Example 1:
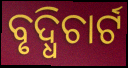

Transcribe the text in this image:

ବୃଦ୍ଧିଚାର୍ଟ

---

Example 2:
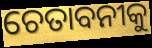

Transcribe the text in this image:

ଚେତାବନୀକୁ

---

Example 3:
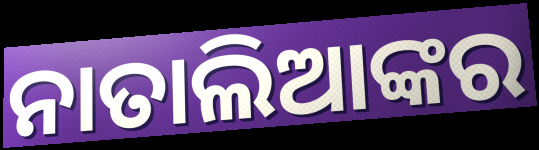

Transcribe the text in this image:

ନାତାଲିଆଙ୍କର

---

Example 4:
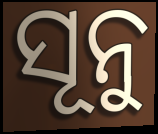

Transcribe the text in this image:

ସୂନୁ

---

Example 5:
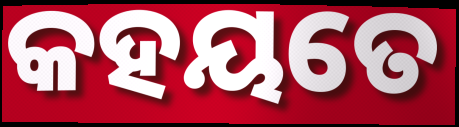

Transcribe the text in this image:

କହୟତେ